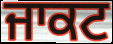
ਜਾਕਟ